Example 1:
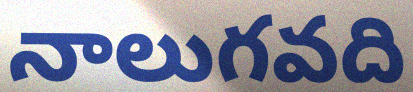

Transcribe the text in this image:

నాలుగవది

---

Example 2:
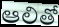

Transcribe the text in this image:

ఆలితో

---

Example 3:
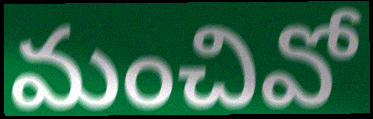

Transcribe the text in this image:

మంచివో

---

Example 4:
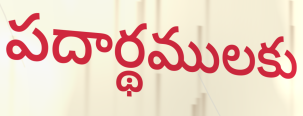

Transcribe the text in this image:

పదార్థములకు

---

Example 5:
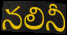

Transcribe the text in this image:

నలినీ